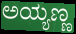
ಅಯ್ಯಣ್ಣ